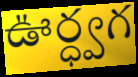
ఊర్ధ్వగ